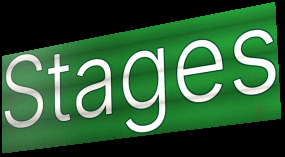
Stages